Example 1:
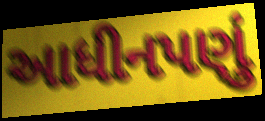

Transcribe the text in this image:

આધીનપણું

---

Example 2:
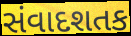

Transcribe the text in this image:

સંવાદશતક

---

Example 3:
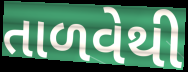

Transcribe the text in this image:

તાળવેથી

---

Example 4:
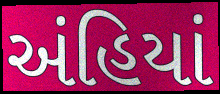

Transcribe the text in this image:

અંહિયાં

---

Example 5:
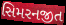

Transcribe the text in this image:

સિમરનજીત